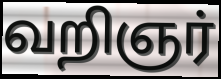
வறிஞர்